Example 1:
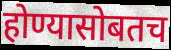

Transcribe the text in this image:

होण्यासोबतच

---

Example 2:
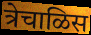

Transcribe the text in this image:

त्रेचाळिस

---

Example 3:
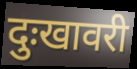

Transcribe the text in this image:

दुःखावरी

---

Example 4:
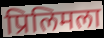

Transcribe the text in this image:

प्रिलिमला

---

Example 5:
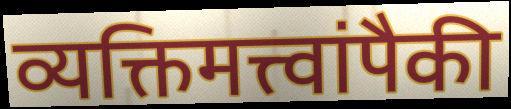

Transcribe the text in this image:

व्यक्तिमत्त्वांपैकी